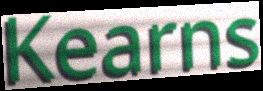
Kearns